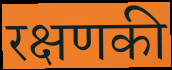
रक्षणकी